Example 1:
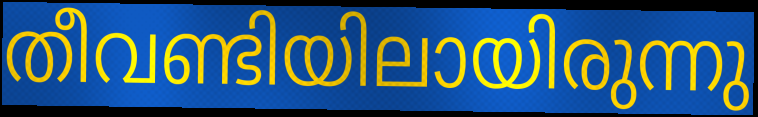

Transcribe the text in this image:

തീവണ്ടിയിലായിരുന്നു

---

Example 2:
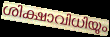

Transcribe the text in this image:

ശിക്ഷാവിധിയും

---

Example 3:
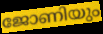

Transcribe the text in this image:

ജോണിയും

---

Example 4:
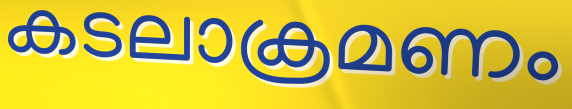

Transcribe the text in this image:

കടലാക്രമണം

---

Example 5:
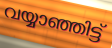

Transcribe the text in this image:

വയ്യാഞ്ഞിട്ട്